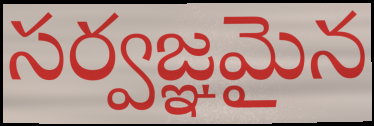
సర్వజ్ఞమైన